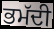
ਭਮੱਦੀ